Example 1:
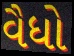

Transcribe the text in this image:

વૈધો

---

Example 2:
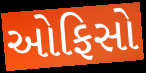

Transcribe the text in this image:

ઓફિસો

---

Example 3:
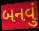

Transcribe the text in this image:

બનવું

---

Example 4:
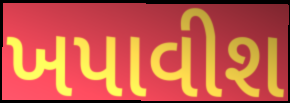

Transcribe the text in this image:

ખપાવીશ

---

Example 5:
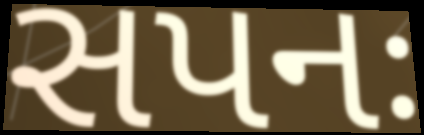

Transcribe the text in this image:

સપનઃ